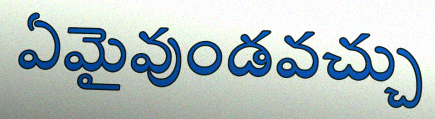
ఏమైవుండవచ్చు